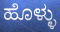
ಹೊಳ್ಳು